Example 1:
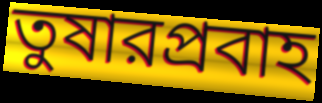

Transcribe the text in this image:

তুষারপ্রবাহ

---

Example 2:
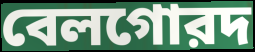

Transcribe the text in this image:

বেলগোরদ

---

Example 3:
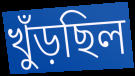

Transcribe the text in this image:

খুঁড়ছিল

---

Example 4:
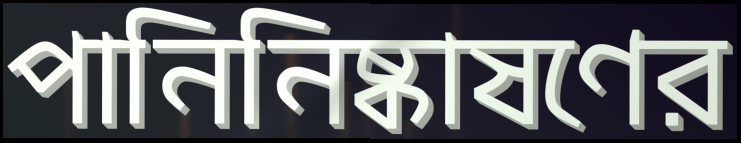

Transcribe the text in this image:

পানিনিষ্কাষণের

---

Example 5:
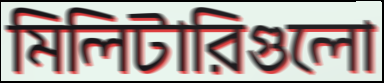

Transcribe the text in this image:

মিলিটারিগুলো